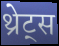
थ्रेट्स